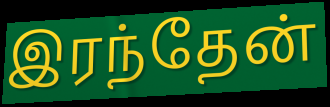
இரந்தேன்